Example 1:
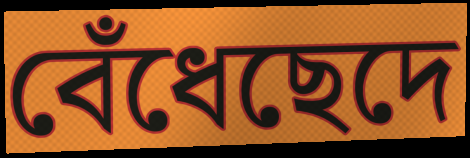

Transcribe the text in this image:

বেঁধেছেদে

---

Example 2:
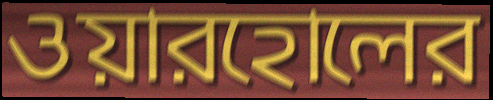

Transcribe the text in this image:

ওয়ারহোলের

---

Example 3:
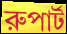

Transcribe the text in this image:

রুপার্ট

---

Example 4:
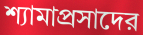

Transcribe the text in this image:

শ্যামাপ্রসাদের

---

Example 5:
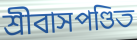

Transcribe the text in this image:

শ্রীবাসপণ্ডিত